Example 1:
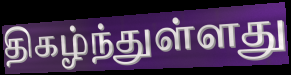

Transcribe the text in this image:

திகழ்ந்துள்ளது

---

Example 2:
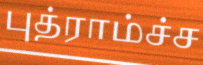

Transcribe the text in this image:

புத்ராம்ச்ச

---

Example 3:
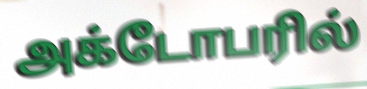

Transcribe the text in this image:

அக்டோபரில்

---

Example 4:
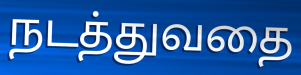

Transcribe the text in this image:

நடத்துவதை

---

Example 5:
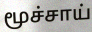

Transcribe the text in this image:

மூச்சாய்